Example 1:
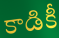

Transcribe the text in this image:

కాడికీ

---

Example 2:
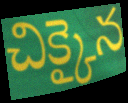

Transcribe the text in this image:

చిక్కైన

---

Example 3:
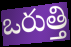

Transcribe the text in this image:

ఒరుత్తి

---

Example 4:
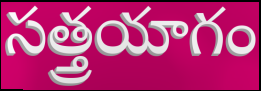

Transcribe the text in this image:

సత్త్రయాగం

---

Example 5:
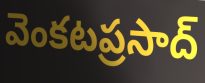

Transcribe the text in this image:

వెంకటప్రసాద్